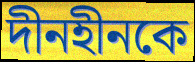
দীনহীনকে